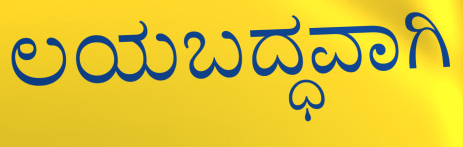
ಲಯಬದ್ಧವಾಗಿ